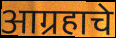
आग्रहाचे